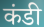
कंडी